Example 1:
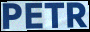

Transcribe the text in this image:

PETR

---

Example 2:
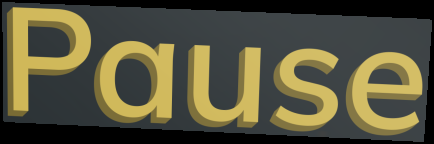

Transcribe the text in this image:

Pause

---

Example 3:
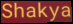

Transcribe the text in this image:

Shakya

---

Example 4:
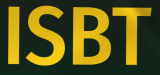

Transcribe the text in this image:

ISBT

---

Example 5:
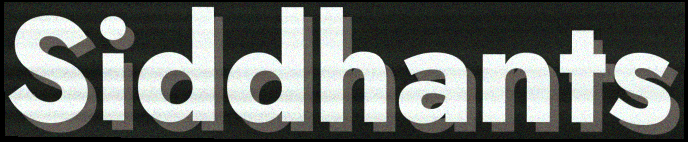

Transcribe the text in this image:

Siddhants